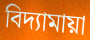
বিদ্যামায়া